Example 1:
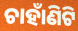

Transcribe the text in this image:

ଚାହାଁଣିଟି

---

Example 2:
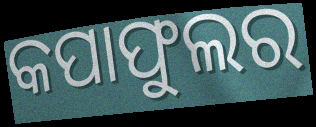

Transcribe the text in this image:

କପାଫୁଲର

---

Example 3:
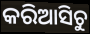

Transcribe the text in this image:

କରିଆସିଚୁ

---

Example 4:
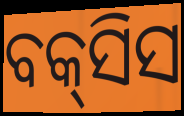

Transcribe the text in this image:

ବକ୍‍ସିସ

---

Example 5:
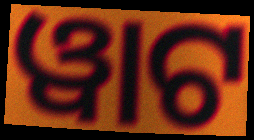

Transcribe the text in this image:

ୱାଟ